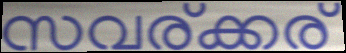
സവര്ക്കര്